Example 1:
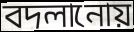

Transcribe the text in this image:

বদলানোয়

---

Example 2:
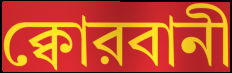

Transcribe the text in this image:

ক্বোরবানী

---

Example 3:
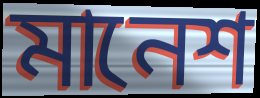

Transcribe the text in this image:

মানেশ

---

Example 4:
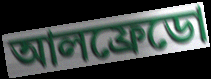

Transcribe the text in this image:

আলফ্রেডো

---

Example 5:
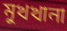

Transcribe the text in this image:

মুখখানা